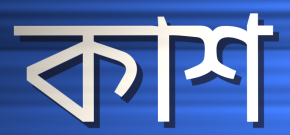
কাশ